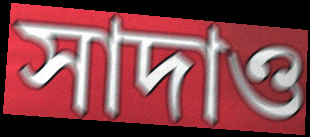
সাদাও